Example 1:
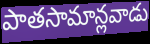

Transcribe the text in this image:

పాతసామాన్లవాడు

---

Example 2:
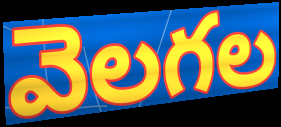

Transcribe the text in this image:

వెలగల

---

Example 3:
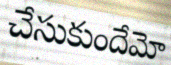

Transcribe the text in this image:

చేసుకుందేమో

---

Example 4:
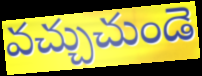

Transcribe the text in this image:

వచ్చుచుండె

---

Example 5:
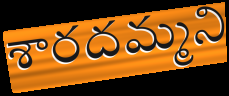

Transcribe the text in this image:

శారదమ్మని